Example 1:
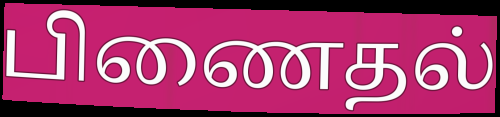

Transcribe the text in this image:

பிணைதல்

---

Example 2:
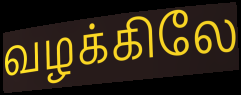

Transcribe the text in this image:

வழக்கிலே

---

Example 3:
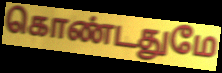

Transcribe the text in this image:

கொண்டதுமே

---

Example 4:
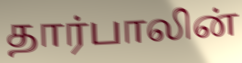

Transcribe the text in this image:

தார்பாலின்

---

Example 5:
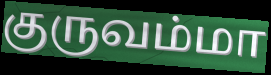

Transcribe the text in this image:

குருவம்மா